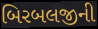
બિરબલજીની